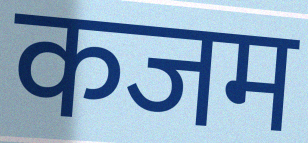
कजम